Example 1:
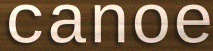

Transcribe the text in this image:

canoe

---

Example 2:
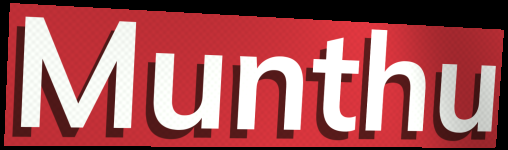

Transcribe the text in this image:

Munthu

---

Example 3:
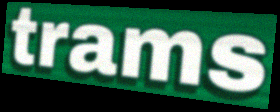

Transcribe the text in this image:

trams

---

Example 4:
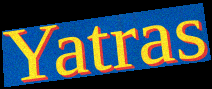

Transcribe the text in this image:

Yatras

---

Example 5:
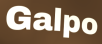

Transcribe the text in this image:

Galpo